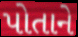
પોતાને